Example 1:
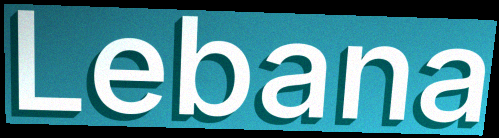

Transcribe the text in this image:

Lebana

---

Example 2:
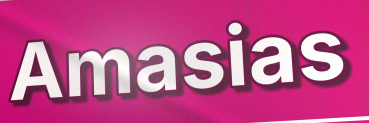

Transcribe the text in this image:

Amasias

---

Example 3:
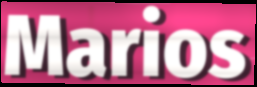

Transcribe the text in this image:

Marios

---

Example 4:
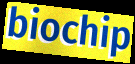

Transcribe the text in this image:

biochip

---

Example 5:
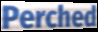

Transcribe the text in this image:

Perched